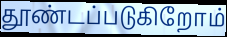
தூண்டப்படுகிறோம்